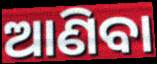
ଆଣିବା